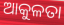
ଆକୁଳତା